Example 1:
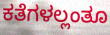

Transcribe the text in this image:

ಕತೆಗಳಲ್ಲಂತೂ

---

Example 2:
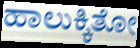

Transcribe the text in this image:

ಹಾಲುಕ್ಕಿತೋ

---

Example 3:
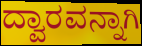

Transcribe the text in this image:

ದ್ವಾರವನ್ನಾಗಿ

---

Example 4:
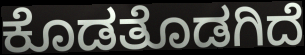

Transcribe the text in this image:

ಕೊಡತೊಡಗಿದೆ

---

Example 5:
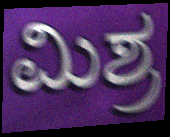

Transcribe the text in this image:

ಮಿಶ್ರ